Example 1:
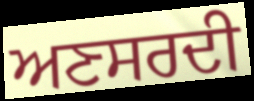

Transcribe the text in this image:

ਅਣਸਰਦੀ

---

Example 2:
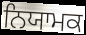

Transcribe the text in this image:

ਨਿਯਾਮਕ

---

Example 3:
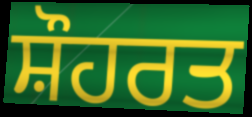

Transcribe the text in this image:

ਸ਼ੌਹਰਤ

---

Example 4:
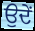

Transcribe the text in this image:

ਉਦੇਂ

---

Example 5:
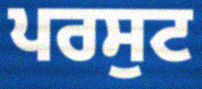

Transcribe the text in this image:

ਪਰਸੁਟ